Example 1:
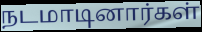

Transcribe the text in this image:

நடமாடினார்கள்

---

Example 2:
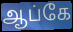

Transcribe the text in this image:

ஆப்கே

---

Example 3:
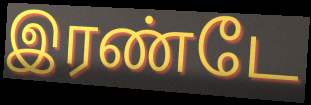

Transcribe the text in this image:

இரண்டே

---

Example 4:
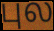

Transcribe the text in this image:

புல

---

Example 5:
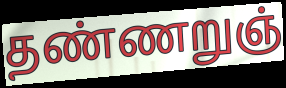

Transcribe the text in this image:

தண்ணறுஞ்